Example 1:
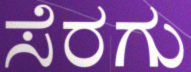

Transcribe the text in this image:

ಸೆರಗು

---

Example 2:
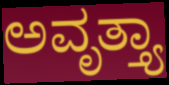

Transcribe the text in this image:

ಅವೃತ್ತ್ಯಾ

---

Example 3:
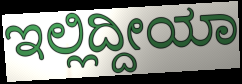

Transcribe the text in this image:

ಇಲ್ಲಿದ್ದೀಯಾ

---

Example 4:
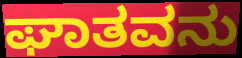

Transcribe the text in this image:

ಘಾತವನು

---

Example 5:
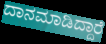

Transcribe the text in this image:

ದಾನಮಾಡಿದ್ದಾರೆ